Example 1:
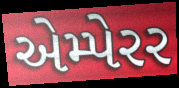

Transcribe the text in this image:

એમ્પેરર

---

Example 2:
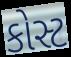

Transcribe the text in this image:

કોસ્ટ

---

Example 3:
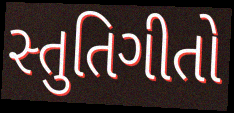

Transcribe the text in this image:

સ્તુતિગીતો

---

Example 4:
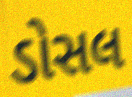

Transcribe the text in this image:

ડોસલ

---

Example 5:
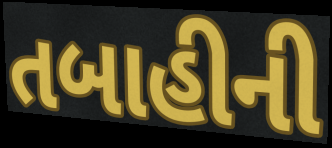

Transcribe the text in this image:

તબાહીની